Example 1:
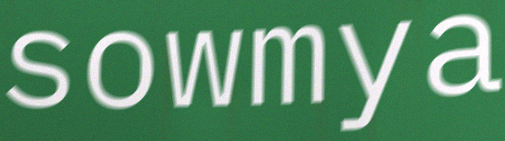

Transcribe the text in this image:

sowmya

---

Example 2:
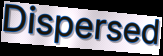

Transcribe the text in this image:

Dispersed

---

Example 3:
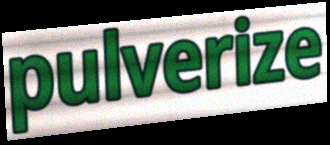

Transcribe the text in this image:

pulverize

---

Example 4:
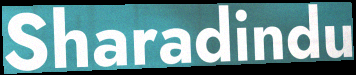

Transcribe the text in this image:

Sharadindu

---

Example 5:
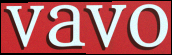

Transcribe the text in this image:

vavo